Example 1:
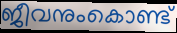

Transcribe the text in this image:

ജീവനുംകൊണ്ട്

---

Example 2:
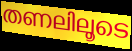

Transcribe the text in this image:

തണലിലൂടെ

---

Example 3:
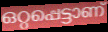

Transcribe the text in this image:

ഒറ്റപ്പെട്ടാണ്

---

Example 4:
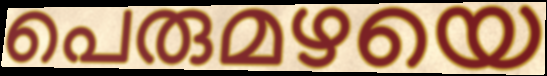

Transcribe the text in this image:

പെരുമഴയെ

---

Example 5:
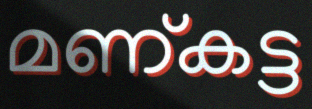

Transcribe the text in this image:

മണ്കട്ട